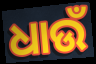
ଧାଉଁ